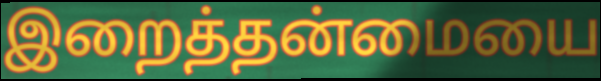
இறைத்தன்மையை